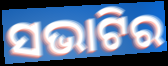
ସଭାଟିର